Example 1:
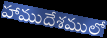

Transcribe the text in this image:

హాముదేశములో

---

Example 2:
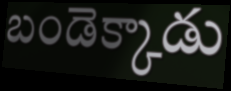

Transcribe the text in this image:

బండెక్కాడు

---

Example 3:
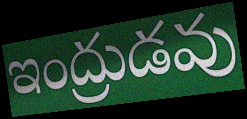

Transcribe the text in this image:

ఇంద్రుడవు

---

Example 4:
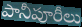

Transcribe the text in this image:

పానీపూరీలు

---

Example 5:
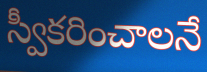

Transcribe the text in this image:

స్వీకరించాలనే